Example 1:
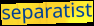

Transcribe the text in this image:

separatist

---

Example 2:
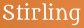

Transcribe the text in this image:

Stirling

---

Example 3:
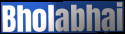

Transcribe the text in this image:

Bholabhai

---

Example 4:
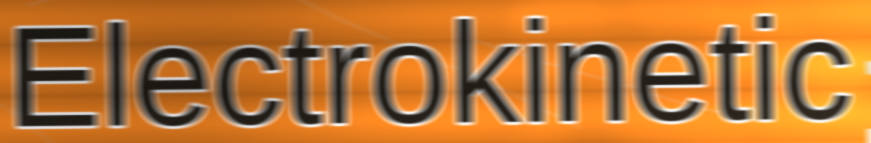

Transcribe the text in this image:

Electrokinetic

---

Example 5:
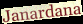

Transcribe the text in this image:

Janardana